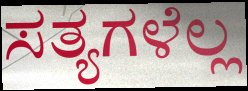
ಸತ್ಯಗಳೆಲ್ಲ